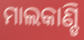
ମାଲକାଣ୍ଡି